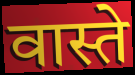
वास्ते